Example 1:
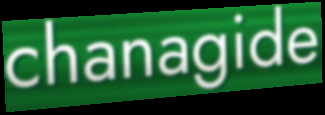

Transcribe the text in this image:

chanagide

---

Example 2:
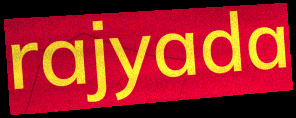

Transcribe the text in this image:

rajyada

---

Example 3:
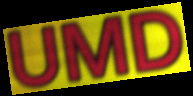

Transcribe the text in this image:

UMD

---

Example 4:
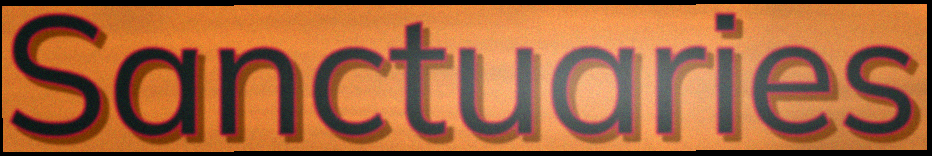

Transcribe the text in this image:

Sanctuaries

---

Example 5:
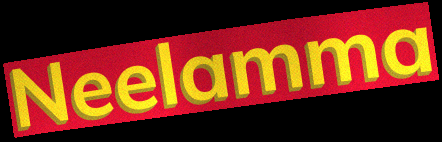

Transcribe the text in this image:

Neelamma